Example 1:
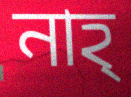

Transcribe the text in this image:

নাহ্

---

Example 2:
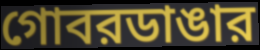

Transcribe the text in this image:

গোবরডাঙার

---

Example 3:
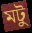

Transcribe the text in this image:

মটু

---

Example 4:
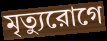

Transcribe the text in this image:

মৃত্যুরোগে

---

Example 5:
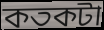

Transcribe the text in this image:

কতকটা